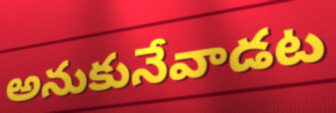
అనుకునేవాడట